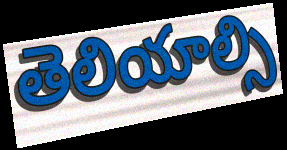
తెలియాల్సి